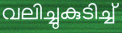
വലിച്ചുകുടിച്ച്